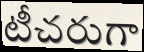
టీచరుగా